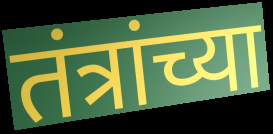
तंत्रांच्या